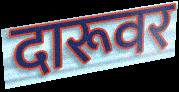
दारूवर